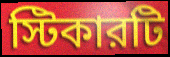
স্টিকারটি